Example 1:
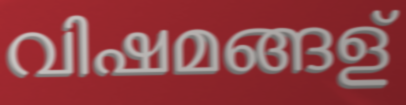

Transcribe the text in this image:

വിഷമങ്ങള്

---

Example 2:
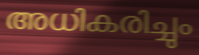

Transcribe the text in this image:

അധികരിച്ചും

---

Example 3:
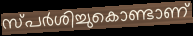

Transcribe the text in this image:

സ്പർശിച്ചുകൊണ്ടാണ്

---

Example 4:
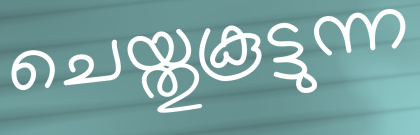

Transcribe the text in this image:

ചെയ്തുകൂട്ടുന്ന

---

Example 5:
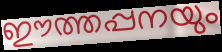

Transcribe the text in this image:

ഈത്തപ്പനയും